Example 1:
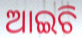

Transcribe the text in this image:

ଆଇଚି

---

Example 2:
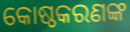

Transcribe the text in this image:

କୋଷ୍ଠକରଣଙ୍କ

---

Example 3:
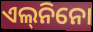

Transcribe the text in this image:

ଏଲ୍‌ନିନୋ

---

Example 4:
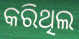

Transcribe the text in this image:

କରିଥିଲ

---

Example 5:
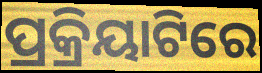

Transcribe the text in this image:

ପ୍ରକ୍ରିୟାଟିରେ